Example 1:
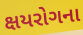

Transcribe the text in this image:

ક્ષયરોગના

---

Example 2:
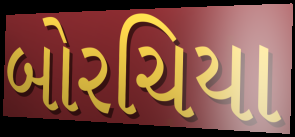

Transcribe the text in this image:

બોરચિયા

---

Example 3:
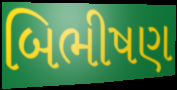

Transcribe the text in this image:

બિભીષણ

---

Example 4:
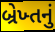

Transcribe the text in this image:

બ્રેખ્તનું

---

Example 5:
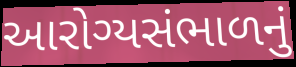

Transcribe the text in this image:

આરોગ્યસંભાળનું